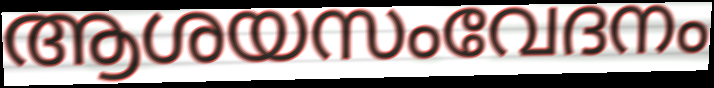
ആശയസംവേദനം